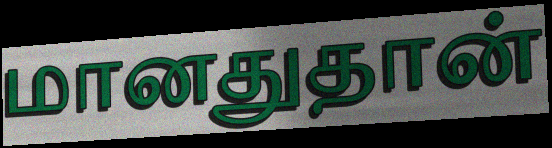
மானதுதான்